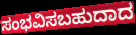
ಸಂಭವಿಸಬಹುದಾದ